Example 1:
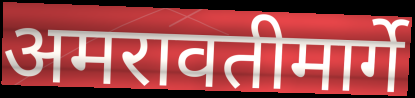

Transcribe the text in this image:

अमरावतीमार्गे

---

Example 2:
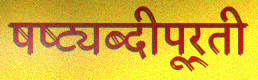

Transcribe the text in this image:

षष्ट्यब्दीपूर्ती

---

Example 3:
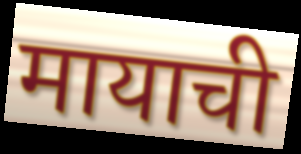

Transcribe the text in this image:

मायाची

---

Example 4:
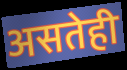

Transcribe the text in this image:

असतेही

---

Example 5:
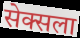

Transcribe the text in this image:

सेक्सला